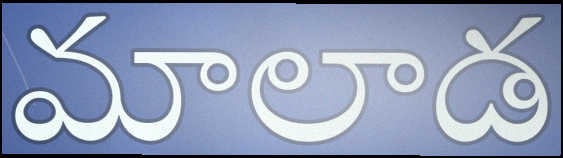
మాలాడ